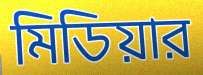
মিডিয়ার